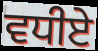
ਵਧੀਏ